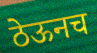
ठेऊनच